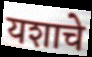
यशाचे